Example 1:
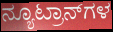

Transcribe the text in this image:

ನ್ಯೂಟ್ರಾನ್‌ಗಳ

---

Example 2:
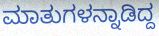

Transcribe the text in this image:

ಮಾತುಗಳನ್ನಾಡಿದ್ದ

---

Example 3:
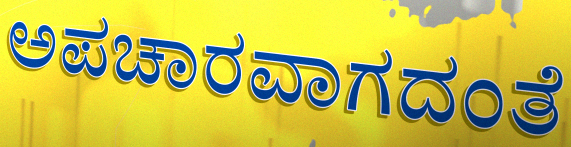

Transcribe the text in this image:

ಅಪಚಾರವಾಗದಂತೆ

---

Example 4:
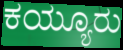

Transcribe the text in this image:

ಕಯ್ಯೂರು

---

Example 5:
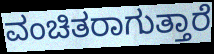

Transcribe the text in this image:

ವಂಚಿತರಾಗುತ್ತಾರೆ